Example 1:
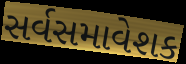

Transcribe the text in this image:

સર્વસમાવેશક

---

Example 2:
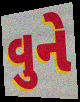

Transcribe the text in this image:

વુને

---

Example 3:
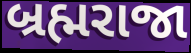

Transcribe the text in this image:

બ્રહ્મરાજા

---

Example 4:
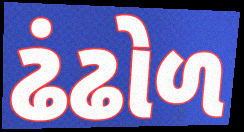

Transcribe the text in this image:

ઢંઢોળ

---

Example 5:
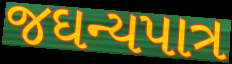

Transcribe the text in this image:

જઘન્યપાત્ર